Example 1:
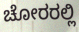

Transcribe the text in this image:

ಚೋರರಲ್ಲಿ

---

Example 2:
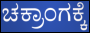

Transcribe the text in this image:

ಚಕ್ರಾಂಗಕ್ಕೆ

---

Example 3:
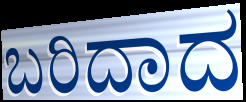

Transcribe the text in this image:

ಬರಿದಾದ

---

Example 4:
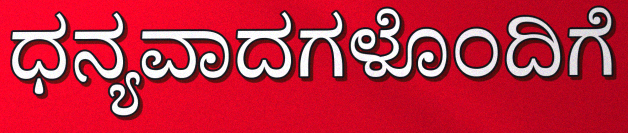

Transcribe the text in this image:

ಧನ್ಯವಾದಗಳೊಂದಿಗೆ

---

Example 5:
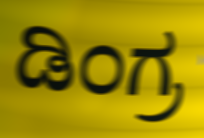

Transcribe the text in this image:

ಡಿಂಗ್ರ